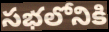
సభలోనికి